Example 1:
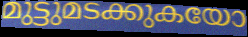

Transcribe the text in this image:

മുട്ടുമടക്കുകയോ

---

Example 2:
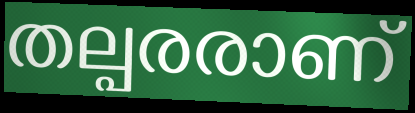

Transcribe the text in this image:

തല്പരരാണ്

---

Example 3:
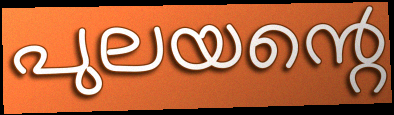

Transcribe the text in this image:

പുലയന്റെ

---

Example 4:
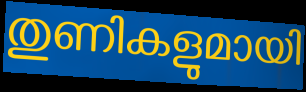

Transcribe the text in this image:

തുണികളുമായി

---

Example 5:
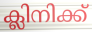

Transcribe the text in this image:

ക്ലിനിക്ക്